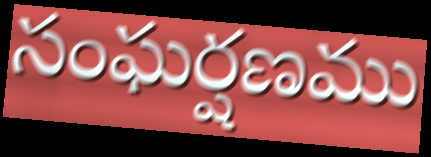
సంఘర్షణము